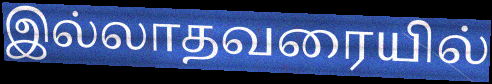
இல்லாதவரையில்